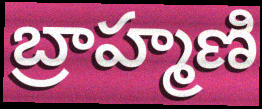
బ్రాహ్మణి